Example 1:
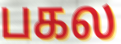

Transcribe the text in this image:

பகல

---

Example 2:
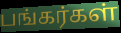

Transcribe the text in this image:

பங்கர்கள்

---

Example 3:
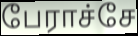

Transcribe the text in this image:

பேராச்சே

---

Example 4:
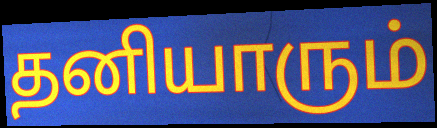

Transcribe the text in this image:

தனியாரும்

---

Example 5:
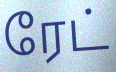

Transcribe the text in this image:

ரேட்